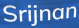
Srijnan